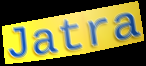
Jatra